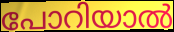
പോറിയാൽ